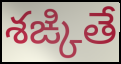
శఙ్కితే